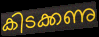
കിടക്കണു